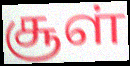
சூள்